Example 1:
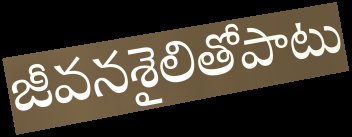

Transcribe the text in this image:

జీవనశైలితోపాటు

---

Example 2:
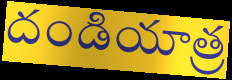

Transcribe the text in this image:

దండియాత్ర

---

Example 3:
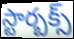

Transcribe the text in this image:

స్టార్బక్స్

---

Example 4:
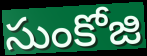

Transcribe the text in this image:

సుంకోజి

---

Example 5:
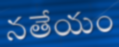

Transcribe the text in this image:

నతేయం